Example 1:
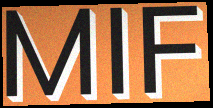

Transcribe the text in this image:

MIF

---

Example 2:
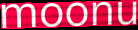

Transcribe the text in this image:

moonu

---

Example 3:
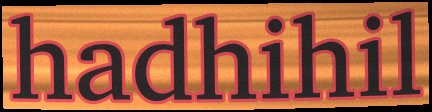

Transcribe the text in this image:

hadhihil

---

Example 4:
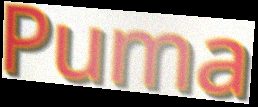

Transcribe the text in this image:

Puma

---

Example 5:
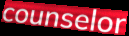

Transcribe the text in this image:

counselor